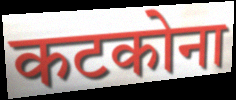
कटकोना